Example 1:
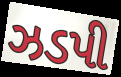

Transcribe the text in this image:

ઝડપી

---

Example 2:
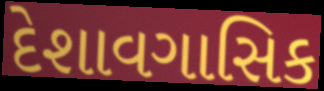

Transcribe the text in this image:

દેશાવગાસિક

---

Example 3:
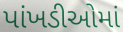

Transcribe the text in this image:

પાંખડીઓમાં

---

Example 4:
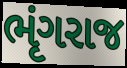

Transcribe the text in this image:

ભૃંગરાજ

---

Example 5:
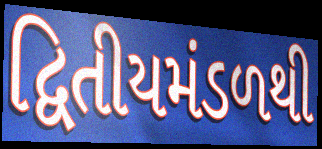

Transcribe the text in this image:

દ્વિતીયમંડળથી